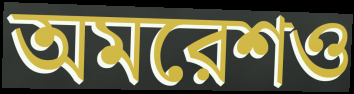
অমরেশও